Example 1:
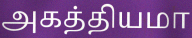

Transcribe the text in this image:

அகத்தியமா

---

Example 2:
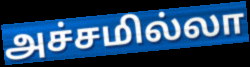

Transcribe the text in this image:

அச்சமில்லா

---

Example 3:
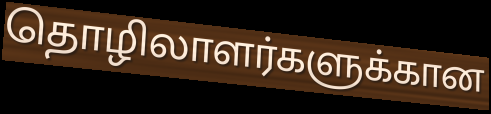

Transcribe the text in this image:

தொழிலாளர்களுக்கான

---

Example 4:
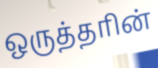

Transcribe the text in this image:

ஒருத்தரின்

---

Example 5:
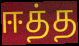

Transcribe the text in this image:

ஈத்த